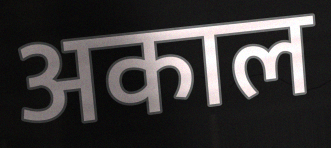
अकाल